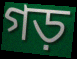
গড়